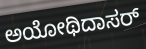
ಅಯೋಥಿದಾಸರ್